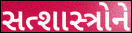
સત્શાસ્ત્રોને